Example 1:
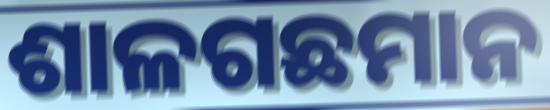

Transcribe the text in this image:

ଶାଳଗଛମାନ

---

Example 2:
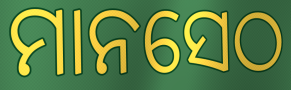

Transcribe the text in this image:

ମାନସେଠ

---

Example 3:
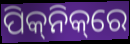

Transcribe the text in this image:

ପିକ୍‌ନିକ୍‌ରେ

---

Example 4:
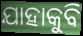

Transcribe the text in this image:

ଯାହାକୁବି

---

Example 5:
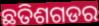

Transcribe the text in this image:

ଛତିଶଗଡର